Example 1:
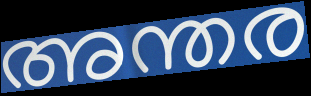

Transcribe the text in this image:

അന്തര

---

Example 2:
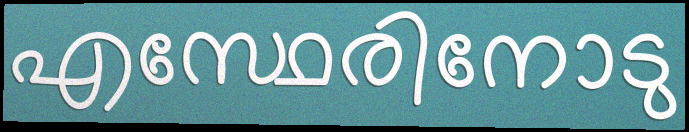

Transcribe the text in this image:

എസ്ഥേരിനോടു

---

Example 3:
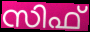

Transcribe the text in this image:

സിഫ്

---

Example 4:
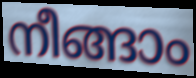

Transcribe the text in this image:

നീങ്ങാം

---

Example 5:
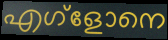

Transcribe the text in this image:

എഗ്ളോനെ